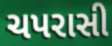
ચપરાસી